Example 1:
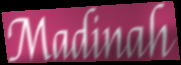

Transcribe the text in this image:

Madinah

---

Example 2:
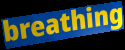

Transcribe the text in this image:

breathing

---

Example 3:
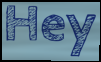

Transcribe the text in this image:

Hey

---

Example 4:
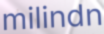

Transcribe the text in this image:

milindn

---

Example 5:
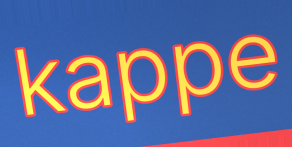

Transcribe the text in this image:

kappe